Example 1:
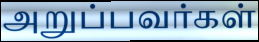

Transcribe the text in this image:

அறுப்பவர்கள்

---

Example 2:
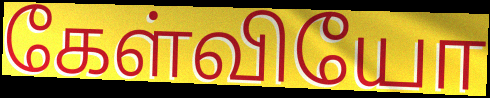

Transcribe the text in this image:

கேள்வியோ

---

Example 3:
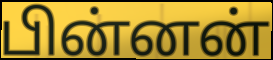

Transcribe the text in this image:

பின்னன்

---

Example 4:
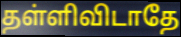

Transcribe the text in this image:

தள்ளிவிடாதே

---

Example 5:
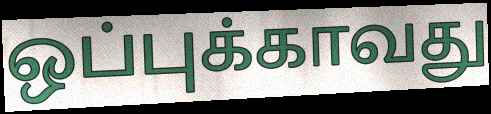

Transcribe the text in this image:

ஒப்புக்காவது